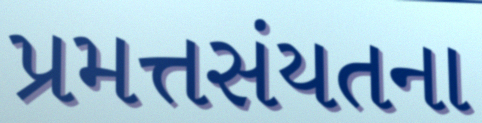
પ્રમત્તસંયતના